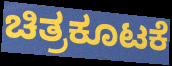
ಚಿತ್ರಕೂಟಕೆ